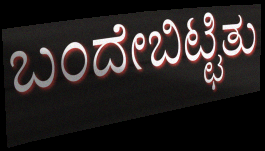
ಬಂದೇಬಿಟ್ಟಿತು